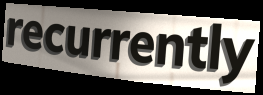
recurrently